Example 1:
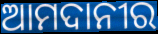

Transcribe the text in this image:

ଆମଦାନୀର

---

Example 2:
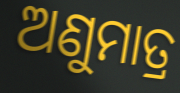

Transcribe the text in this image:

ଅଣୁମାତ୍ର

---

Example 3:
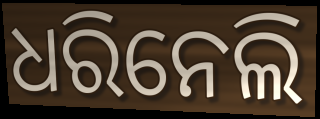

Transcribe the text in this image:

ଧରିନେଲି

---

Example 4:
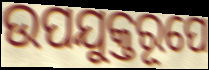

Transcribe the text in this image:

ଉପଯୁକ୍ତରୂପେ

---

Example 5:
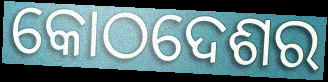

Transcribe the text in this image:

କୋଠଦେଶର